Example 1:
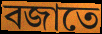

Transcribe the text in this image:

বজাতে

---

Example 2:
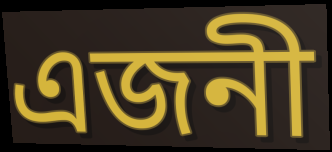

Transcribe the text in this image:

এজনী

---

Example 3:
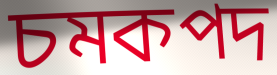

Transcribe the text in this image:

চমকপদ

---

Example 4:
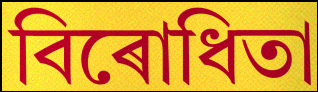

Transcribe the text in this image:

বিৰোধিতা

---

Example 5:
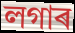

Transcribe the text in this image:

লগাৰ